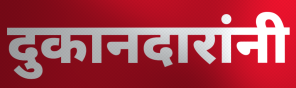
दुकानदारांनी